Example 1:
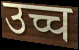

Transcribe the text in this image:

उच्च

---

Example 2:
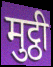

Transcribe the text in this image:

मुट्ठी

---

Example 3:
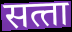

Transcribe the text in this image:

सत्‍ता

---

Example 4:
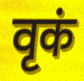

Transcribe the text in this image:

वृकं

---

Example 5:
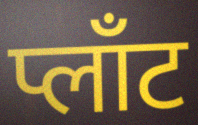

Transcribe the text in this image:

प्लाँट